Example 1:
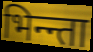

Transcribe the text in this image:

भिन्न्ता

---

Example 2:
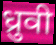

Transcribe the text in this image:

ध्रुवी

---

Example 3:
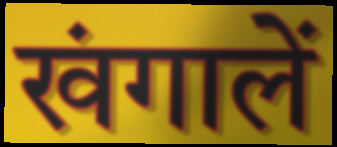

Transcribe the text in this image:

खंगालें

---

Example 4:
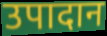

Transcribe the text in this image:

उपादान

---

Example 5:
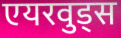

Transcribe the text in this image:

एयरवुड्स